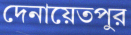
দেনায়েতপুর